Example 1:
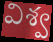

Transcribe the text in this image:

విశ్వ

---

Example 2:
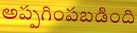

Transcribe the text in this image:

అప్పగింపబడింది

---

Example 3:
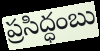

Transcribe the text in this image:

ప్రసిద్ధంబు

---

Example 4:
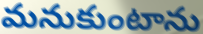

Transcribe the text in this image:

మనుకుంటాను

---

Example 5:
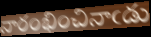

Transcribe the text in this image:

నారంభించినాఁడు